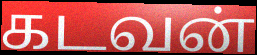
கடவன்